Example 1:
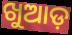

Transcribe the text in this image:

ଖୁଆଡ଼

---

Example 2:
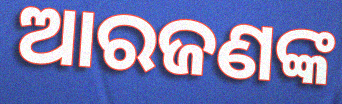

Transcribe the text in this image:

ଆରଜଣଙ୍କ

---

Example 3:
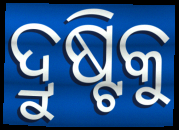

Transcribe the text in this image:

ଦ୍ରୁଷ୍ଟିକୁ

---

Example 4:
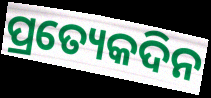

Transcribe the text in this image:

ପ୍ରତ୍ୟେକଦିନ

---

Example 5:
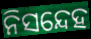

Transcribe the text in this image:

ନିସନ୍ଦେହ